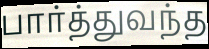
பார்த்துவந்த